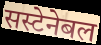
सस्टेनेबल